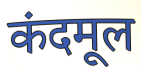
कंदमूल